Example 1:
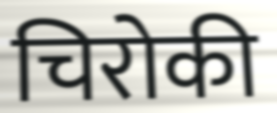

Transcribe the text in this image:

चिरोकी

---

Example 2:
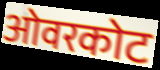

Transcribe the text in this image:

ओवरकोट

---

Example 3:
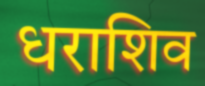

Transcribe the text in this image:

धराशिव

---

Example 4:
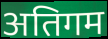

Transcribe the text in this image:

अतिगम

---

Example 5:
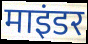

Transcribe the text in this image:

माइंडर